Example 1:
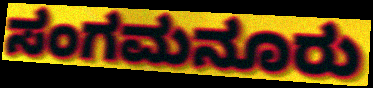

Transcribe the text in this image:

ಸಂಗಮನೂರು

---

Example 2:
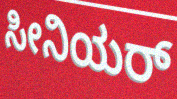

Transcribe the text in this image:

ಸೀನಿಯರ್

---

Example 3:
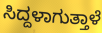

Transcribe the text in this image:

ಸಿದ್ದಳಾಗುತ್ತಾಳೆ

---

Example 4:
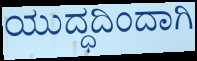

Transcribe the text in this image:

ಯುದ್ಧದಿಂದಾಗಿ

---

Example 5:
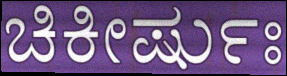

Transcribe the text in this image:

ಚಿಕೀರ್ಷುಃ